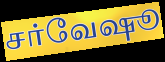
சர்வேஷூ